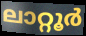
ലാറ്റൂർ